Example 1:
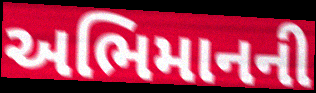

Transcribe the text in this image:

અભિમાનની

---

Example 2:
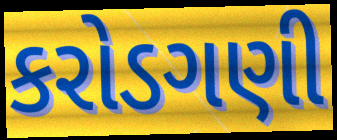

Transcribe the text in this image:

કરોડગણી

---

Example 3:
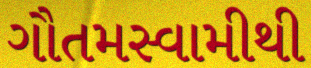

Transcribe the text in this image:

ગૌતમસ્વામીથી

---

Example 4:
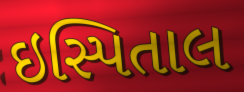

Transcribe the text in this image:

ઇસ્પિતાલ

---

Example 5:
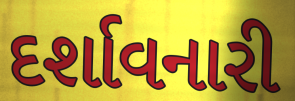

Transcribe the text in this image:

દર્શાવનારી